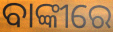
ବାଙ୍କୀରେ